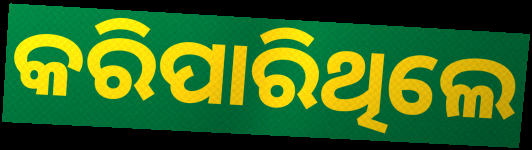
କରିପାରିଥିଲେ